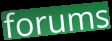
forums